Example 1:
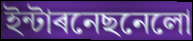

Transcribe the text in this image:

ইন্টাৰনেছনেলো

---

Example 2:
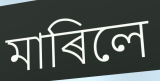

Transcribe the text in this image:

মাৰিলে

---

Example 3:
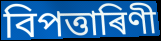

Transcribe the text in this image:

বিপত্তাৰিণী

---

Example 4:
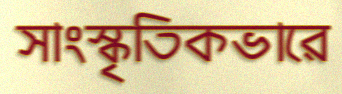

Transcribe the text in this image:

সাংস্কৃতিকভাৱে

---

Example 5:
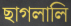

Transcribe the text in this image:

ছাগলালি